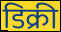
डिक्री